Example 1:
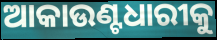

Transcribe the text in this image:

ଆକାଉଣ୍ଟଧାରୀକୁ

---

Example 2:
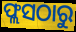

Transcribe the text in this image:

ଫ୍ଲସଠାରୁ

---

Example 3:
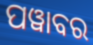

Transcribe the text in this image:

ପୱାବର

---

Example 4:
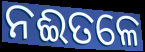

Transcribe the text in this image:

ନଈତଳେ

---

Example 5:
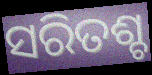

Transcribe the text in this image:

ସରିତଶ୍ଚ